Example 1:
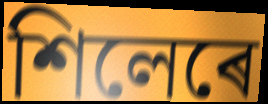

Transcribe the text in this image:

শিলেৰে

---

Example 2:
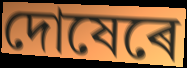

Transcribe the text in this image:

দোষেৰে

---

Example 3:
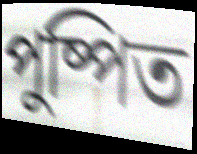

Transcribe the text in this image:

পুষ্পিত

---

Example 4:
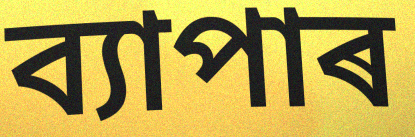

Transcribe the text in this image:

ব্যাপাৰ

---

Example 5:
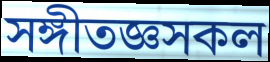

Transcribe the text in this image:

সঙ্গীতজ্ঞসকল